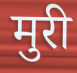
मुरी